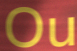
Ou